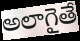
అలాగైతే